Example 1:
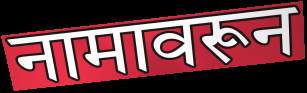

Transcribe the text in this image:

नामावरून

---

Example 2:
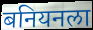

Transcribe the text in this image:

बनियनला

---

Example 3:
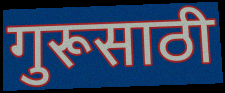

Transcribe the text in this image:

गुरूसाठी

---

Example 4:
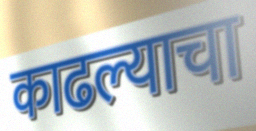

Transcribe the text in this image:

काढल्याचा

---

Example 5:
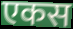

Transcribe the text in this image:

एकस